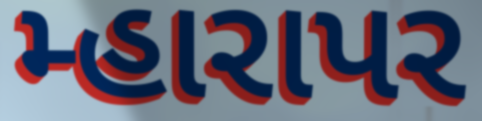
મ્હારાપર